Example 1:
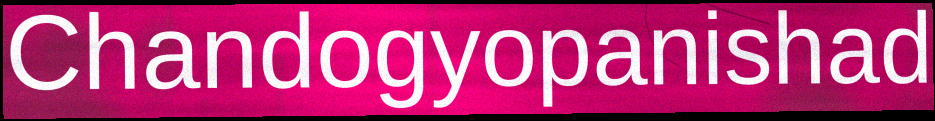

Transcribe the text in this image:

Chandogyopanishad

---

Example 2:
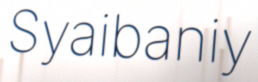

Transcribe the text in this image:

Syaibaniy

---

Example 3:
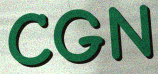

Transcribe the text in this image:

CGN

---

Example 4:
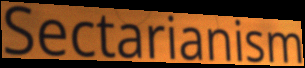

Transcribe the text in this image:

Sectarianism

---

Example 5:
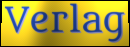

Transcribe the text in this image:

Verlag